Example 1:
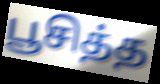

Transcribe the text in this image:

பூசித்த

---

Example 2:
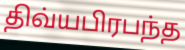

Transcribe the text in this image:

திவ்யபிரபந்த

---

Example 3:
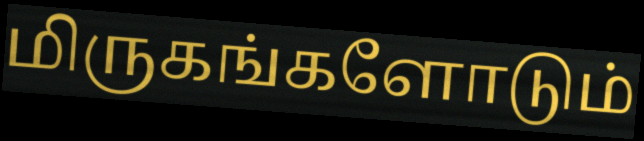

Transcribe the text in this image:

மிருகங்களோடும்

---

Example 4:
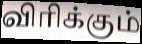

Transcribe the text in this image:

விரிக்கும்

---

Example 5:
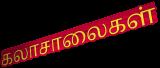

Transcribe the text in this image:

கலாசாலைகள்